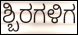
ಶ್ಬಿರಗಳಿಗ